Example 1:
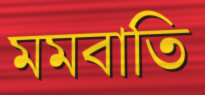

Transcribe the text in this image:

মমবাতি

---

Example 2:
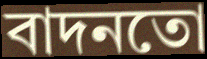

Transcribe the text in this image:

বাদনতো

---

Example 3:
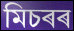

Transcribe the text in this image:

মিচৰৰ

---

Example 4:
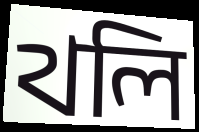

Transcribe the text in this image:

থলি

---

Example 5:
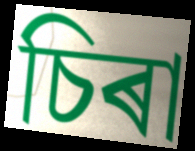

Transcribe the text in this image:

চিৰা